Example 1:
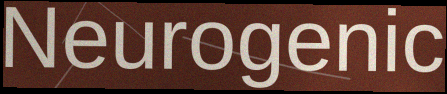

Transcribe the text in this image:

Neurogenic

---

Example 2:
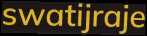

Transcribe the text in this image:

swatijraje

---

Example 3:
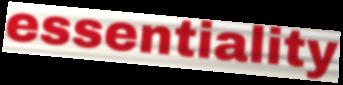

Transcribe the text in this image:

essentiality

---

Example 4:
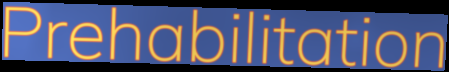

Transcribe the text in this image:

Prehabilitation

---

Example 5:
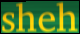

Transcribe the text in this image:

sheh